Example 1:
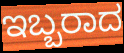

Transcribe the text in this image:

ಇಬ್ಬರಾದ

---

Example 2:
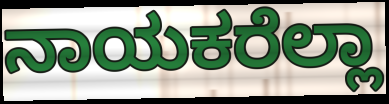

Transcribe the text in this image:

ನಾಯಕರೆಲ್ಲಾ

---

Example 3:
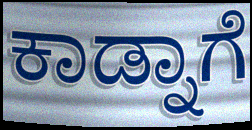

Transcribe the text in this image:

ಕಾಡ್ನಾಗೆ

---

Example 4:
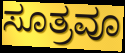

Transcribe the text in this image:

ಸೂತ್ರವೂ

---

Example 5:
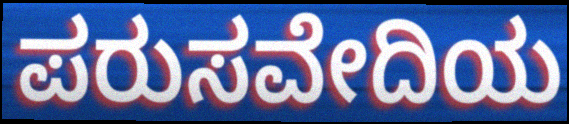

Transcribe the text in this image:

ಪರುಸವೇದಿಯ